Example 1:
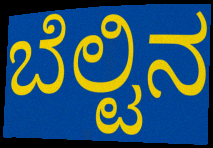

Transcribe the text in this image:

ಬೆಲ್ಟಿನ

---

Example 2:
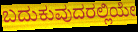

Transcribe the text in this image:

ಬದುಕುವುದರಲ್ಲಿಯೇ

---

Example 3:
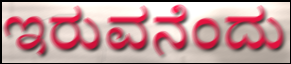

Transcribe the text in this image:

ಇರುವನೆಂದು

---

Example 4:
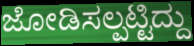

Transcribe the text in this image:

ಜೋಡಿಸಲ್ಪಟ್ಟಿದ್ದು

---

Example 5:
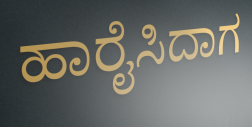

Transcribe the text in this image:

ಹಾರೈಸಿದಾಗ